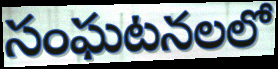
సంఘటనలలో